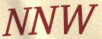
NNW